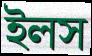
ইলস